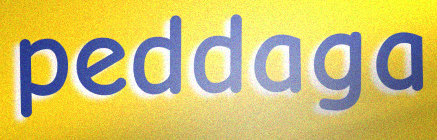
peddaga